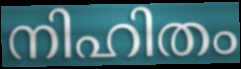
നിഹിതം